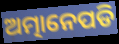
ଅତ୍ମାନେପଡି